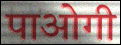
पाओगी